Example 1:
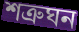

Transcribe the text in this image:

শত্ৰুঘন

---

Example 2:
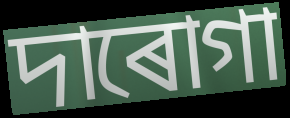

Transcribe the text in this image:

দাৰোগা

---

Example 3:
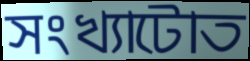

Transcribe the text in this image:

সংখ্যাটোত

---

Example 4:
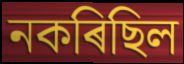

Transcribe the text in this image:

নকৰিছিল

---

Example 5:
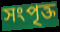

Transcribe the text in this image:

সংপৃক্ত